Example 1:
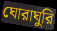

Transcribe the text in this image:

ঘোরাঘুরি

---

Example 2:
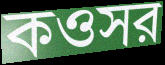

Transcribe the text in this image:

কওসর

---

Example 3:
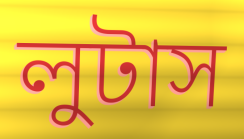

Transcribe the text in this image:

লুটাস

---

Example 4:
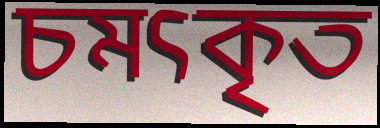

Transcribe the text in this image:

চমৎকৃত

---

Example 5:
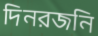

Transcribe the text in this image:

দিনরজনি